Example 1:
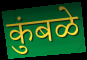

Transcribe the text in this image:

कुंबळे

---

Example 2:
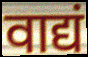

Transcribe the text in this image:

वाद्यं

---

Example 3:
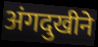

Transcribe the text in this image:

अंगदुखीने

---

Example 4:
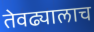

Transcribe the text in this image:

तेवढ्यालाच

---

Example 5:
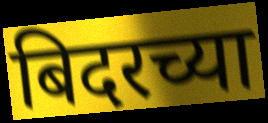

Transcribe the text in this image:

बिदरच्या